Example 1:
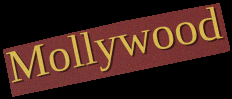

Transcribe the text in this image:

Mollywood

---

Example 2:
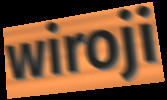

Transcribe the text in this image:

wiroji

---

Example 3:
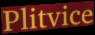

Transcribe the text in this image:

Plitvice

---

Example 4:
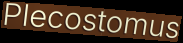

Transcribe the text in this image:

Plecostomus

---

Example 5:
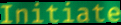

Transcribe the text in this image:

Initiate